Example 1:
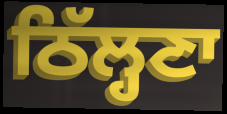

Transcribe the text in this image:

ਠਿੱਲ੍ਹਣਾ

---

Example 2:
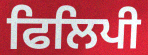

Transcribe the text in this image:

ਫਿਲਿਪੀ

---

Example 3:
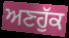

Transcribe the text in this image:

ਅਣਹੁੱਕ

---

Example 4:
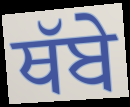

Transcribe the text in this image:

ਥੱਬੇ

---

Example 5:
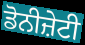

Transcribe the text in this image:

ਡੋਨੀਜ਼ੇਟੀ